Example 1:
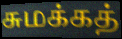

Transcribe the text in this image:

சுமக்கத்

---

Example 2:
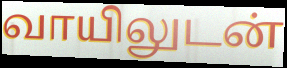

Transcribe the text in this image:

வாயிலுடன்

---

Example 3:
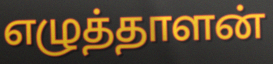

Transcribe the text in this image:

எழுத்தாளன்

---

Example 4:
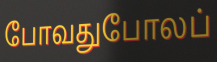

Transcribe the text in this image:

போவதுபோலப்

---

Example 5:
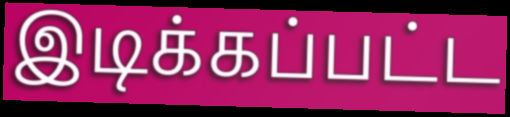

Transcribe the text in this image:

இடிக்கப்பட்ட